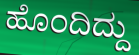
ಹೊಂದಿದ್ದು